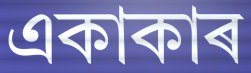
একাকাৰ